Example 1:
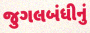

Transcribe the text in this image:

જુગલબંધીનું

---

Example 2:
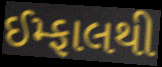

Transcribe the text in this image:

ઈમ્ફાલથી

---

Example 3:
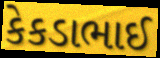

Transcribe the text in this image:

કેકડાભાઈ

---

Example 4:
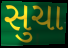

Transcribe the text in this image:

સુચા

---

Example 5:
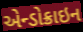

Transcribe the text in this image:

એન્ડોક્રાઇન